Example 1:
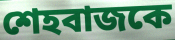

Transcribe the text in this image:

শেহবাজকে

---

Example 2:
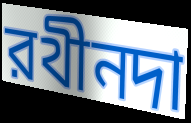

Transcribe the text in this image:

রথীনদা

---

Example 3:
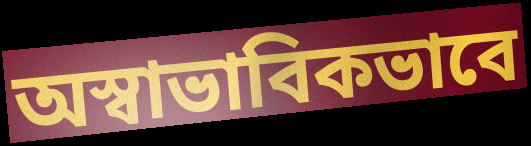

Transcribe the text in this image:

অস্বাভাবিকভাবে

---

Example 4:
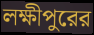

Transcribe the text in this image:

লক্ষীপুরের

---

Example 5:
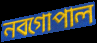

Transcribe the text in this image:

নবগোপাল